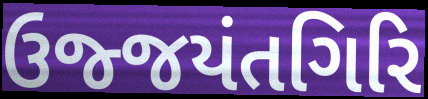
ઉજ્જયંતગિરિ